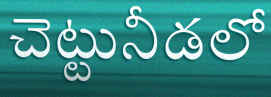
చెట్టునీడలో